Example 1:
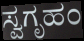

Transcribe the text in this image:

ಸ್ವಗೃಹಂ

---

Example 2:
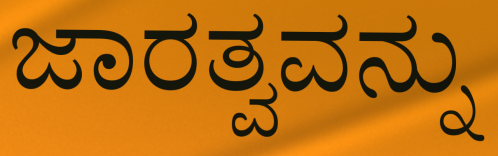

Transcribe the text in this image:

ಜಾರತ್ವವನ್ನು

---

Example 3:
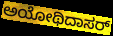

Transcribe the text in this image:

ಅಯೋಥಿದಾಸರ್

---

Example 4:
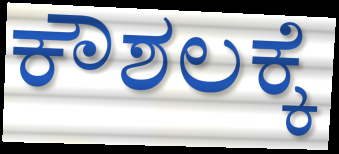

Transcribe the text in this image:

ಕೌಶಲಕ್ಕೆ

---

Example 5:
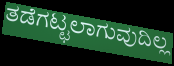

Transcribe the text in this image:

ತಡೆಗಟ್ಟಲಾಗುವುದಿಲ್ಲ